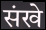
संखे